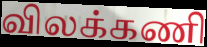
விலக்கணி